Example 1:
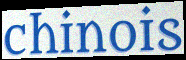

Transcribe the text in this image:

chinois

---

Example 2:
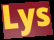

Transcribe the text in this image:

Lys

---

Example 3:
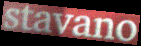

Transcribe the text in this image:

stavano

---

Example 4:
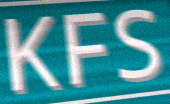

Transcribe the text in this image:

KFS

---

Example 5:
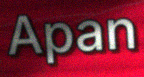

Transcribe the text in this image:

Apan